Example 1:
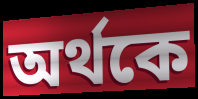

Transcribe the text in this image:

অৰ্থকে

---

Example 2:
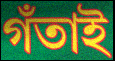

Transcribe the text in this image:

গঁতাই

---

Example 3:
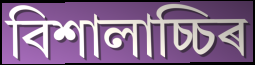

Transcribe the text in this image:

বিশালাচ্চিৰ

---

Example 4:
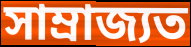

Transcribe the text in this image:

সাম্ৰাজ্যত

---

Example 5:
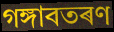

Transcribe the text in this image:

গঙ্গাবতৰণ